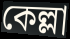
কেল্লা